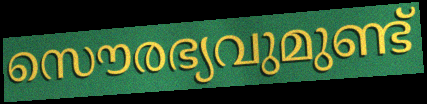
സൌരഭ്യവുമുണ്ട്